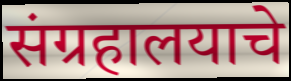
संग्रहालयाचे